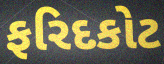
ફરિદકોટ